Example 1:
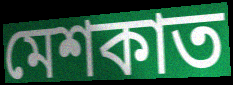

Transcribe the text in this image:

মেশকাত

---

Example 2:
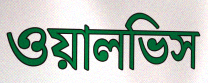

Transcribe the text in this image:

ওয়ালভিস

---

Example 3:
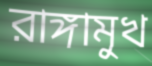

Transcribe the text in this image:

রাঙ্গামুখ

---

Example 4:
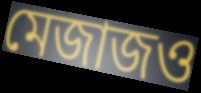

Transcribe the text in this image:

মেজাজও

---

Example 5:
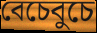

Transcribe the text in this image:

বেচেবুচে